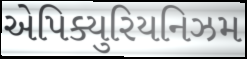
એપિક્યુરિયનિઝમ